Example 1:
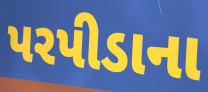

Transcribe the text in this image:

પરપીડાના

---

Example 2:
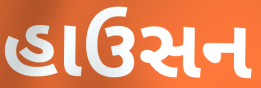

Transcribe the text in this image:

હાઉસન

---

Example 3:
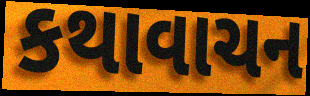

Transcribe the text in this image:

કથાવાચન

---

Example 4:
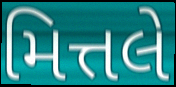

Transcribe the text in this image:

મિત્તલે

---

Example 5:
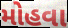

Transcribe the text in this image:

મોહવા